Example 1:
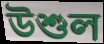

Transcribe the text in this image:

উশুল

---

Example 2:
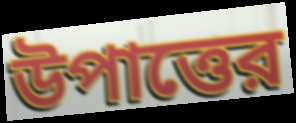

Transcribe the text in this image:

উপাত্তের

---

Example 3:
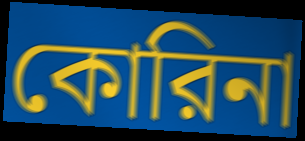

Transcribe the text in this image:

কোরিনা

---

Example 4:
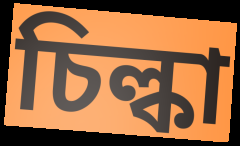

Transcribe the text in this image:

চিল্কা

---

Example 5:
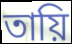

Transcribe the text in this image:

তায়ি